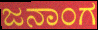
ಜನಾಂಗ